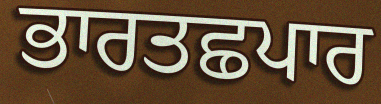
ਭਾਰਤਛਪਾਰ